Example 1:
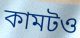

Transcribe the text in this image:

কামটও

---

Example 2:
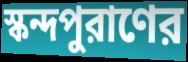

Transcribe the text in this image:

স্কন্দপুরাণের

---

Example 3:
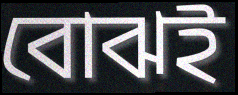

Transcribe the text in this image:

বোঝই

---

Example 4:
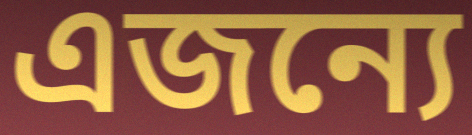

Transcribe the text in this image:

এজন্যে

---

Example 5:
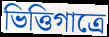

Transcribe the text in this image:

ভিত্তিগাত্রে